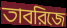
তাবরিজে